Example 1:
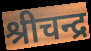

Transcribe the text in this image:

श्रीचन्द्र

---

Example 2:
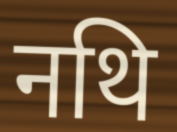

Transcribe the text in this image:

नथि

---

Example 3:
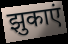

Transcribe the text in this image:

झुकाएं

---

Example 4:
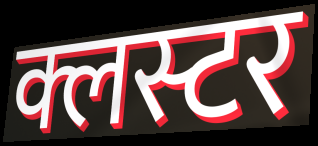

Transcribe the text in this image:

क्‍लस्‍टर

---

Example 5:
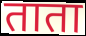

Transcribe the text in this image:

ताता